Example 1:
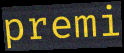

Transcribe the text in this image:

premi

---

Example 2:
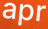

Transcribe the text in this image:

apr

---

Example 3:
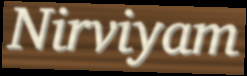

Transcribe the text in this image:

Nirviyam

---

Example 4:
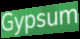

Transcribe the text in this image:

Gypsum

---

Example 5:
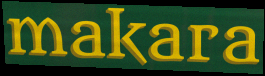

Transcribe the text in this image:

makara